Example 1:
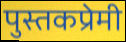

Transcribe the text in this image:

पुस्तकप्रेमी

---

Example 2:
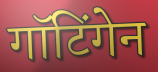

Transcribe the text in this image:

गॉटिंगेन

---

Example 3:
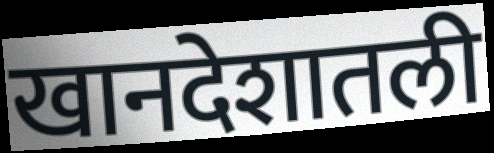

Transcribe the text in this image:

खानदेशातली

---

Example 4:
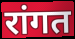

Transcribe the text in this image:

रांगत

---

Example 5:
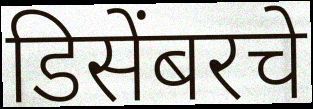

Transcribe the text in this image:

डिसेंबरचे